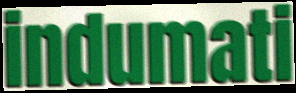
indumati